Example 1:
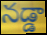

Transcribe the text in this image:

నడ్డా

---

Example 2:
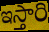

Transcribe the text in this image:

ఇస్తారి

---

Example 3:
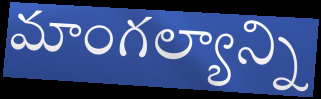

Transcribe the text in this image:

మాంగల్యాన్ని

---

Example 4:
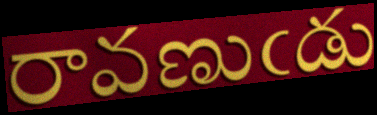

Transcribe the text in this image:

రావణుఁడు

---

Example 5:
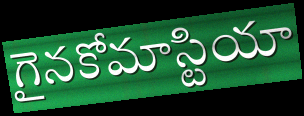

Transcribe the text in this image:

గైనకోమాస్టియా